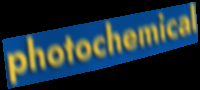
photochemical